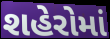
શહેરોમાં